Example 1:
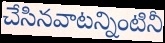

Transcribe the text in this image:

చేసినవాటన్నింటినీ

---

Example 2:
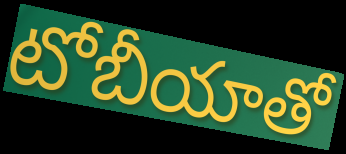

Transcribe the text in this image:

టోబీయాతో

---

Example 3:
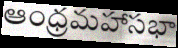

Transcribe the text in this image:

ఆంధ్రమహాసభా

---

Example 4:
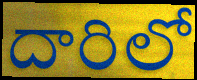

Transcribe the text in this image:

దారిలో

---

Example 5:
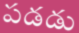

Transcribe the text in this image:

పడడు